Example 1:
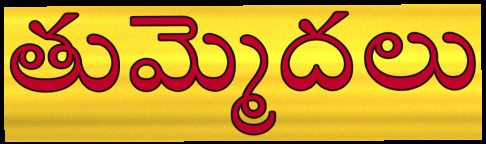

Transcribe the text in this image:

తుమ్మెదలు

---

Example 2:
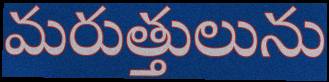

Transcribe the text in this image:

మరుత్తులును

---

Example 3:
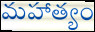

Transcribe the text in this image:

మహాత్యం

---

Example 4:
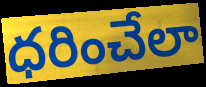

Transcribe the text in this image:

ధరించేలా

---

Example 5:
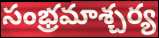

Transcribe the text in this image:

సంభ్రమాశ్చర్య